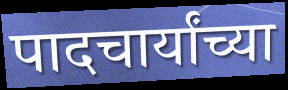
पादचार्यांच्या